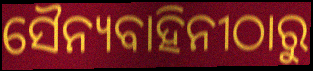
ସୈନ୍ୟବାହିନୀଠାରୁ